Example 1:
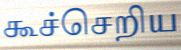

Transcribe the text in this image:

கூச்செறிய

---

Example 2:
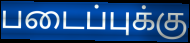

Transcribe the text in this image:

படைப்புக்கு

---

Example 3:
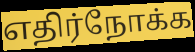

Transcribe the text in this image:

எதிர்நோக்க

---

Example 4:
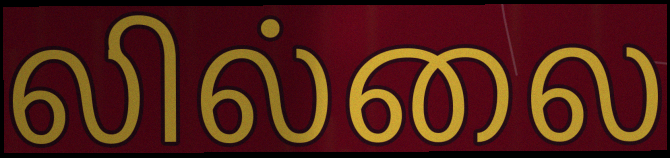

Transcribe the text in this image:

லில்லை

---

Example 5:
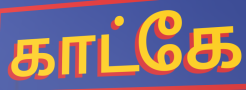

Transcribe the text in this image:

காட்கே